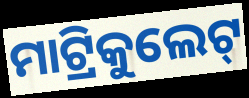
ମାଟ୍ରିକୁଲେଟ୍